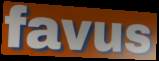
favus